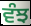
ਵੰਝ